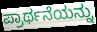
ಪ್ರಾರ್ಥನೆಯನ್ನು